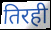
तिरही